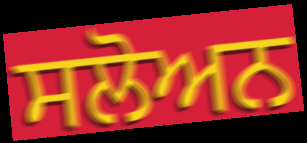
ਸਲੋਅਨ